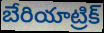
బేరియాట్రిక్